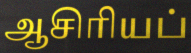
ஆசிரியப்